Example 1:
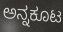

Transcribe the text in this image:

ಅನ್ನಕೂಟ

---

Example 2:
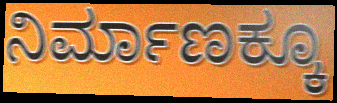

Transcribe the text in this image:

ನಿರ್ಮಾಣಕ್ಕೂ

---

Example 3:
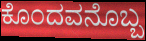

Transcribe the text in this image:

ಕೊಂದವನೊಬ್ಬ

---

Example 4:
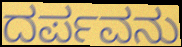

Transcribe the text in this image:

ದರ್ಪವನು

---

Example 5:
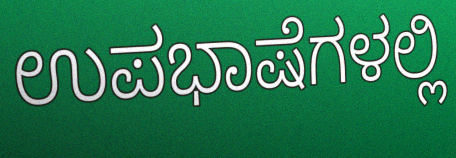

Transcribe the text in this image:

ಉಪಭಾಷೆಗಳಲ್ಲಿ